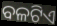
ବଳଟିଏ